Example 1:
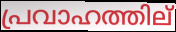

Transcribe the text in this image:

പ്രവാഹത്തില്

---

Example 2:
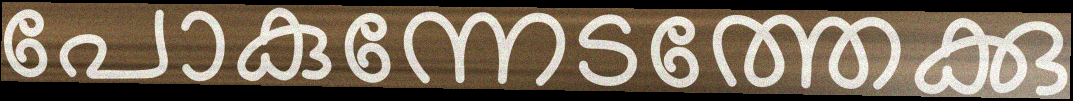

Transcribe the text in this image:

പോകുന്നേടത്തേക്കു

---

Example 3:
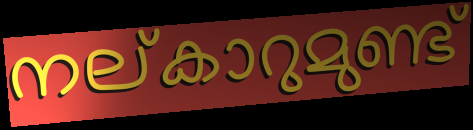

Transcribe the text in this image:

നല്കാറുമുണ്ട്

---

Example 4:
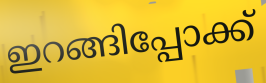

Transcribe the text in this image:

ഇറങ്ങിപ്പോക്ക്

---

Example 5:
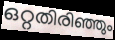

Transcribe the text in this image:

ഒറ്റതിരിഞ്ഞും